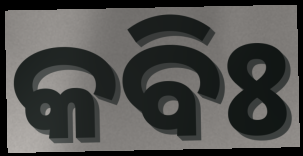
କବିଃ